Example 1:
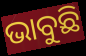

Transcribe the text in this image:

ଭାବୁଛି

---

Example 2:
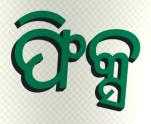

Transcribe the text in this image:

ଫିକ୍ସ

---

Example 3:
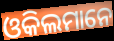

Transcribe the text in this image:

ଓକିଲମାନେ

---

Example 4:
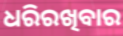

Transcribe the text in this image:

ଧରିରଖିବାର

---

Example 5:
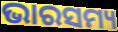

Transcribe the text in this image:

ଭାରସମ୍ୟ